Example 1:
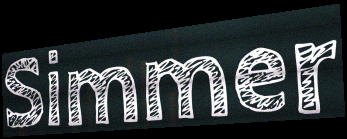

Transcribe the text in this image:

Simmer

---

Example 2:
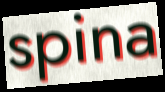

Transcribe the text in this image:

spina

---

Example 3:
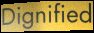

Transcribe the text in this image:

Dignified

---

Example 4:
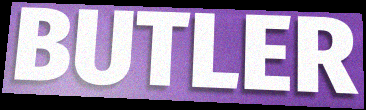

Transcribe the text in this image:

BUTLER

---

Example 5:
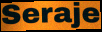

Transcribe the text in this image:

Seraje